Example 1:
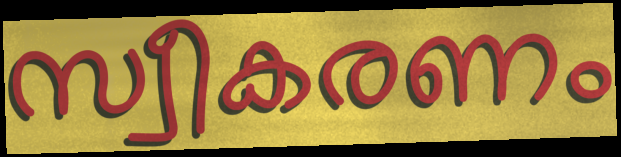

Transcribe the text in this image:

സ്വീകരണം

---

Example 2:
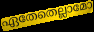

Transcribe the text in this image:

ഏതേതെല്ലാമോ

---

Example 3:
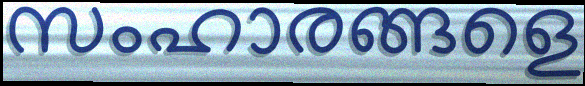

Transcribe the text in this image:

സംഹാരങ്ങളെ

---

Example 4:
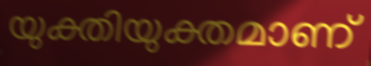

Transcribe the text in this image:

യുക്തിയുക്തമാണ്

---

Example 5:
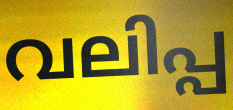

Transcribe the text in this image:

വലിപ്പ